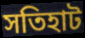
সতিহাট